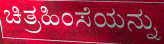
ಚಿತ್ರಹಿಂಸೆಯನ್ನು